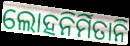
ଲୋହନିର୍ମିତାନି